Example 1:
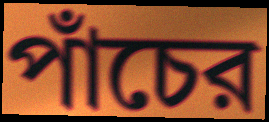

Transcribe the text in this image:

পাঁচের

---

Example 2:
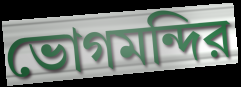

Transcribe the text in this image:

ভোগমন্দির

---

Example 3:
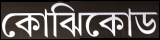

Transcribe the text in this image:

কোঝিকোড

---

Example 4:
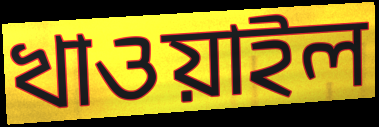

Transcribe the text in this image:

খাওয়াইল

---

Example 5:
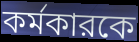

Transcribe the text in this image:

কর্মকারকে